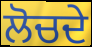
ਲੋਚਦੇ